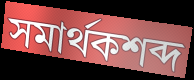
সমার্থকশব্দ